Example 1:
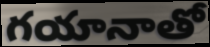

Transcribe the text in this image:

గయానాతో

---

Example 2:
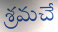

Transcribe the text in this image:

శ్రమచే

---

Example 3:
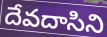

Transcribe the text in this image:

దేవదాసిని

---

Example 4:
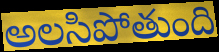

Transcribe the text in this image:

అలసిపోతుంది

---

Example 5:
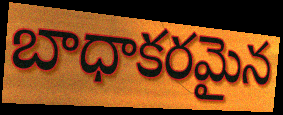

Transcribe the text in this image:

బాధాకరమైన